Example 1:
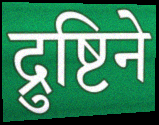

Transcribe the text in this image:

द्रुष्टिने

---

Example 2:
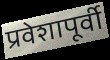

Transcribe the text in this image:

प्रवेशापूर्वी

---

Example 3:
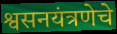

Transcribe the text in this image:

श्वसनयंत्रणेचे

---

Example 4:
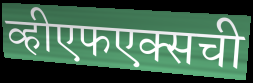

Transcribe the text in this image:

व्हीएफएक्सची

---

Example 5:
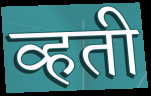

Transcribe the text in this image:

व्हती